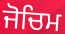
ਜੋਚਿਮ